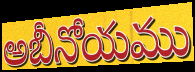
అబీనోయము